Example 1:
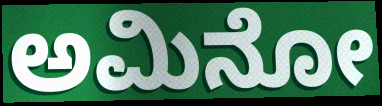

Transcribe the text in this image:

ಅಮಿನೋ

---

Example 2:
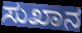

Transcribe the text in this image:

ಸುಖಾನ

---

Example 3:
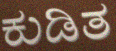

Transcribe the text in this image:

ಕುಡಿತ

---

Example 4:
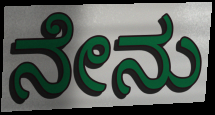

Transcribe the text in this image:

ನೇನು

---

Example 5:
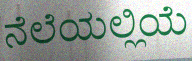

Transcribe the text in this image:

ನೆಲೆಯಲ್ಲಿಯೆ